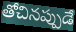
తోచినప్పుడే